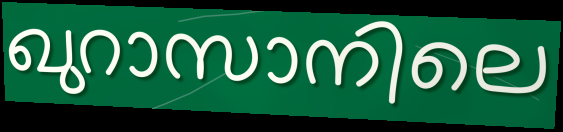
ഖുറാസാനിലെ